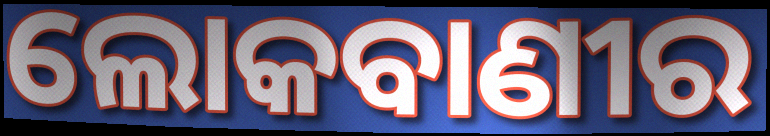
ଲୋକବାଣୀର